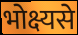
भोक्ष्यसे